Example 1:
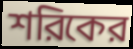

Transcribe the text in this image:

শরিকের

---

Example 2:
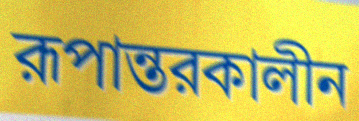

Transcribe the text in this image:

রূপান্তরকালীন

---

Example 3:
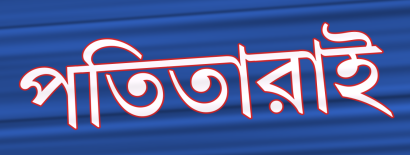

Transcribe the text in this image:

পতিতারাই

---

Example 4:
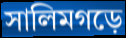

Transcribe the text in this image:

সালিমগড়ে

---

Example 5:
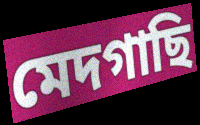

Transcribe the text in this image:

মেদগাছি